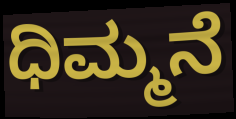
ಧಿಮ್ಮನೆ